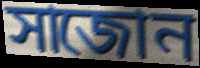
সাজোন